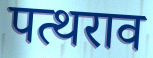
पत्थराव